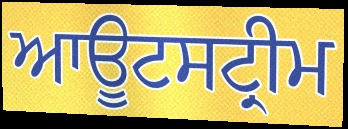
ਆਊਟਸਟ੍ਰੀਮ